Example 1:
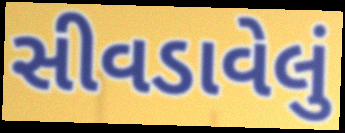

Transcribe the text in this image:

સીવડાવેલું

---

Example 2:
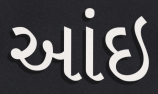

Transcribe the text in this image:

આંઇ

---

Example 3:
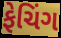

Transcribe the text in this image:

ફેચિંગ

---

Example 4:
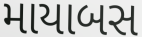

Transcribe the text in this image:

માયાબસ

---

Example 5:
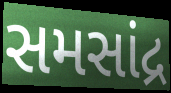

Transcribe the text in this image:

સમસાંદ્ર